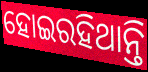
ହୋଇରହିଥାନ୍ତି